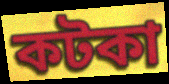
কটকা